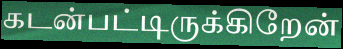
கடன்பட்டிருக்கிறேன்